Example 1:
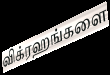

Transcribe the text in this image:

விக்ரஹங்களை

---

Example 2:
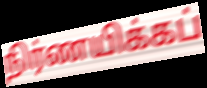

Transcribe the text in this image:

நிர்ணயிக்கப்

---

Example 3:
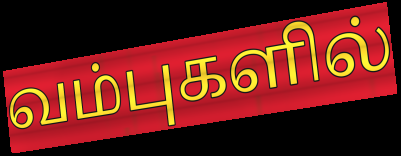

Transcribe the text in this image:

வம்புகளில்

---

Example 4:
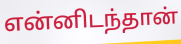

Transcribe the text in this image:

என்னிடந்தான்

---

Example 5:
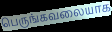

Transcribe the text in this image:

பெருங்கவலையாக